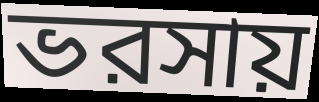
ভরসায়